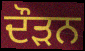
ਦੌਡ਼ਨ